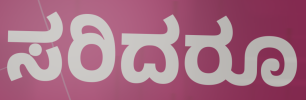
ಸರಿದರೂ